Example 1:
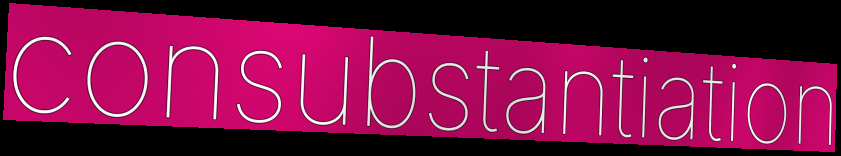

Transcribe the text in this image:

consubstantiation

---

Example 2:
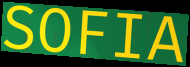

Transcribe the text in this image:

SOFIA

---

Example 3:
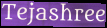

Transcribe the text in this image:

Tejashree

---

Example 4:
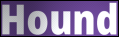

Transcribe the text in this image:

Hound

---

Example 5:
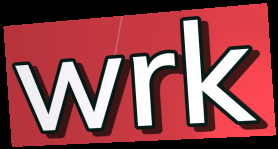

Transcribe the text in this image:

wrk